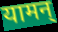
यामन्